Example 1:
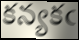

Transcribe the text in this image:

కన్యకఁ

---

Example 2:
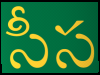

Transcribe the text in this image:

సీస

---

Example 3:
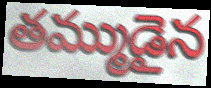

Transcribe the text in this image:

తమ్ముడైన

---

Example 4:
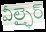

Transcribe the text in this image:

వీల్ఛైర్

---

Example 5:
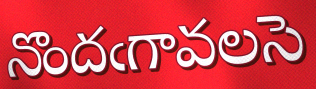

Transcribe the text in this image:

నొందఁగావలసె